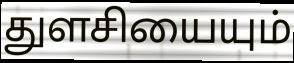
துளசியையும்